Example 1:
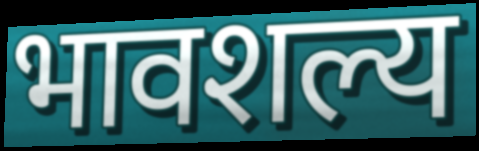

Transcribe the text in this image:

भावशल्य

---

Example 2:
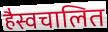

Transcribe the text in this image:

हैस्वचालित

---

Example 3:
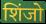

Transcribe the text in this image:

शिंजो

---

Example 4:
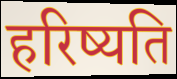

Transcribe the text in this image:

हरिष्यति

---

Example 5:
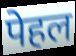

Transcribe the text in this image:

पेहल